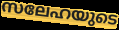
സലേഹയുടെ